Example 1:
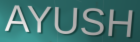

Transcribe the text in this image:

AYUSH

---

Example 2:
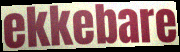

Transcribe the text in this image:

ekkebare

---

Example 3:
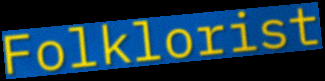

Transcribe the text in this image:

Folklorist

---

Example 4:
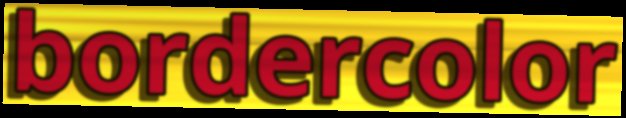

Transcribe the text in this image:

bordercolor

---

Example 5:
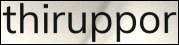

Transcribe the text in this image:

thiruppor